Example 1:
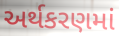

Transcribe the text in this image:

અર્થકરણમાં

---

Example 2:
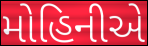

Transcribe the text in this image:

મોહિનીએ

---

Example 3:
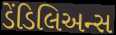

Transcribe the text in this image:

ડેંડિલિઅન્સ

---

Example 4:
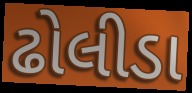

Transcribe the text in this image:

ઢોલીડા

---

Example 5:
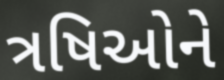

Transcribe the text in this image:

ત્રષિઓને